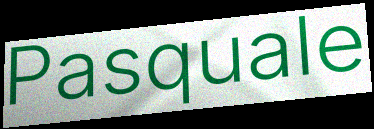
Pasquale